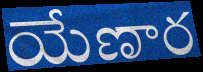
యేణార